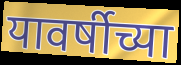
यावर्षीच्या